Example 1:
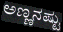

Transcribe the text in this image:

ಅಣ್ಣನಷ್ಟು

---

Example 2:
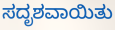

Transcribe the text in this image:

ಸದೃಶವಾಯಿತು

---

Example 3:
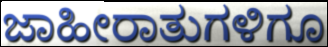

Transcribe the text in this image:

ಜಾಹೀರಾತುಗಳಿಗೂ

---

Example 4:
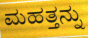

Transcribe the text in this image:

ಮಹತ್ತನ್ನು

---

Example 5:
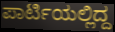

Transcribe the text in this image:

ಪಾರ್ಟಿಯಲ್ಲಿದ್ದ